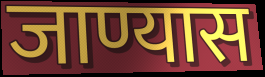
जाण्यास